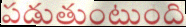
పడుతుంటుంది